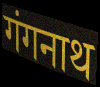
गंगनाथ